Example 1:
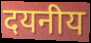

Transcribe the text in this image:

दयनीय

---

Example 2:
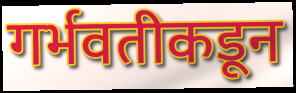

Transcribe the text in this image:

गर्भवतीकडून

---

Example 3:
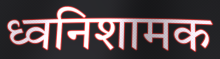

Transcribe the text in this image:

ध्वनिशामक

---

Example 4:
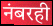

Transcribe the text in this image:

नंबरही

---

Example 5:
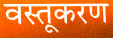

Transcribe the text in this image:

वस्तूकरण